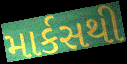
માર્કસથી